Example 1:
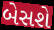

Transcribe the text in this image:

બેસશે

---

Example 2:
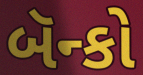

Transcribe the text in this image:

બૅન્કો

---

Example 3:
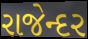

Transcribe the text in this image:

રાજેન્દર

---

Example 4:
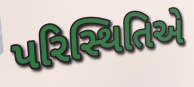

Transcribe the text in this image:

પરિસ્થિતિએ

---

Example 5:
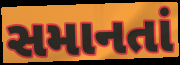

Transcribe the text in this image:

સમાનતાં